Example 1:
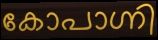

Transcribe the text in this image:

കോപാഗ്നി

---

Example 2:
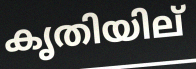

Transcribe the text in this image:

കൃതിയില്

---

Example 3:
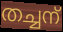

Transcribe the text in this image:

തച്ചന്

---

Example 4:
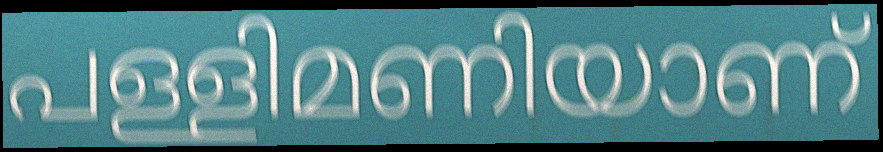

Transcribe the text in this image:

പള്ളിമണിയാണ്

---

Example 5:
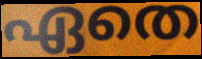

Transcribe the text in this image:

ഏതെ